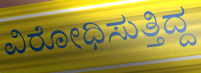
ವಿರೋಧಿಸುತ್ತಿದ್ದ